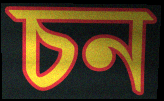
চন